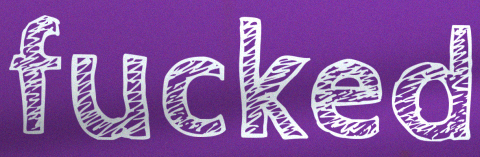
fucked